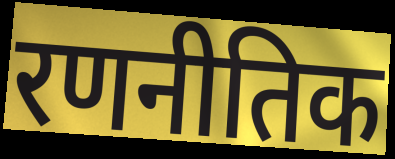
रणनीतिक